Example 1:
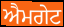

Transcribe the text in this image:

ਐਮਗੇਟ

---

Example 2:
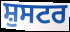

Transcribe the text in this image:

ਸ਼ੁਸਟਰ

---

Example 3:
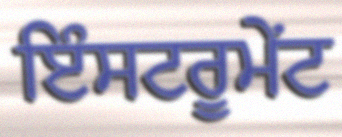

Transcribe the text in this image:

ਇੰਸਟਰੂਮੇਂਟ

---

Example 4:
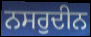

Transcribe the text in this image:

ਨਸਰੁਦੀਨ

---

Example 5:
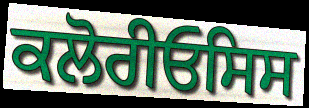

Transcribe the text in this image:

ਕਲੋਰੀਓਸਿਸ